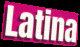
Latina